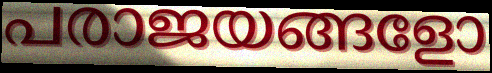
പരാജയങ്ങളോ